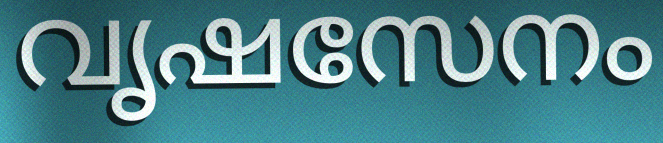
വൃഷസേനം